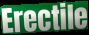
Erectile